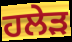
ਹਲੇੜ